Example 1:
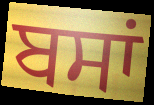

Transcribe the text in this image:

ਬਸਾਂ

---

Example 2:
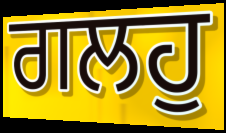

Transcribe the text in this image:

ਗਲਹੁ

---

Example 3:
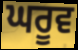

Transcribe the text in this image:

ਘਰੂਵ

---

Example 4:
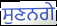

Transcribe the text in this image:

ਸੁਣਨਗੇ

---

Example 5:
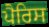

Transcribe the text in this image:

ਪੈਰਿਸ